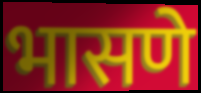
भासणे